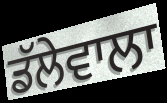
ਡੱਲੇਵਾਲਾ